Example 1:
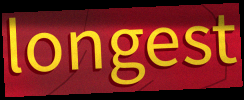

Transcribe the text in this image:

longest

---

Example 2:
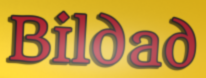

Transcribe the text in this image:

Bildad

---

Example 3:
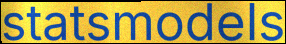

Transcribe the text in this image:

statsmodels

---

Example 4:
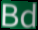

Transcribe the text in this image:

Bd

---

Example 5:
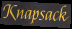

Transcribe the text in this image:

Knapsack